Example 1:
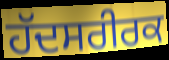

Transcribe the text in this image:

ਹੱਦਸਰੀਰਕ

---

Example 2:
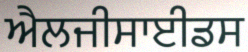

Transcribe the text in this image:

ਐਲਜੀਸਾਈਡਸ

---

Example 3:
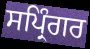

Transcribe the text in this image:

ਸਪ੍ਰਿੰਗਰ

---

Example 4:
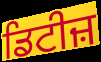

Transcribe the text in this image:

ਡਿਟੀਜ਼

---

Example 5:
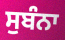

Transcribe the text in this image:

ਸੁਬੰਨਾ